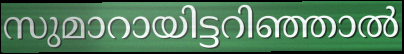
സുമാറായിട്ടറിഞ്ഞാൽ